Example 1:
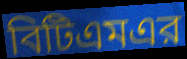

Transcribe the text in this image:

বিটিএমএর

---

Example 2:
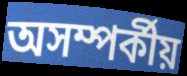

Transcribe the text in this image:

অসম্পর্কীয়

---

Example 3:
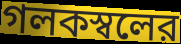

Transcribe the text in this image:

গলকস্বলের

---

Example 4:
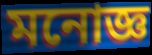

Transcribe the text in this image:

মনোজ্ঞ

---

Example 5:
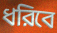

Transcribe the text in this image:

ধরিবে